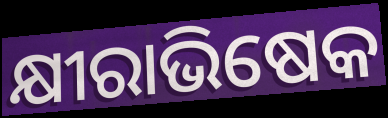
କ୍ଷୀରାଭିଷେକ